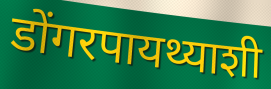
डोंगरपायथ्याशी